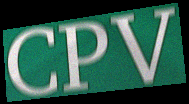
CPV